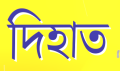
দিহাত